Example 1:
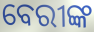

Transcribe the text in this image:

ବେରୀଙ୍କ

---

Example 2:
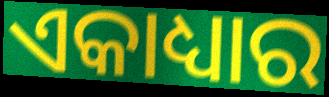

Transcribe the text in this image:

ଏକାଧ୍ୟାର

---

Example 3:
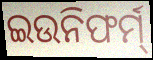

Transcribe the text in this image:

ଇଉନିଫର୍ମ୍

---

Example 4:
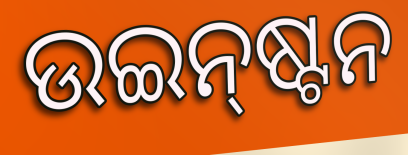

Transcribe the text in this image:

ଉଇନ୍‌ଷ୍ଟନ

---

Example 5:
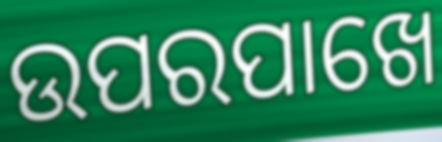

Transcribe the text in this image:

ଉପରପାଖେ